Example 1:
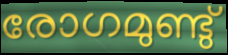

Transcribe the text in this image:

രോഗമുണ്ടു്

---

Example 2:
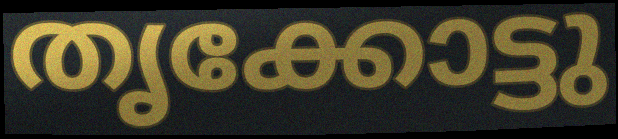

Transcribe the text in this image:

തൃക്കോട്ടു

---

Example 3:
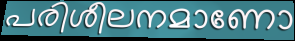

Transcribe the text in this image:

പരിശീലനമാണോ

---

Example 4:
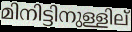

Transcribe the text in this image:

മിനിട്ടിനുള്ളില്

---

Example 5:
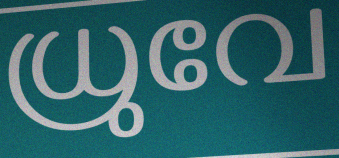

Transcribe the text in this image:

ധ്രുവേ